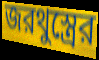
জরথুস্ত্রের